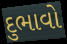
દુભાવો